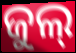
ଜୁଲ୍